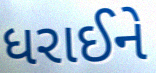
ધરાઈને